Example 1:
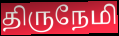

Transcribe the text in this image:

திருநேமி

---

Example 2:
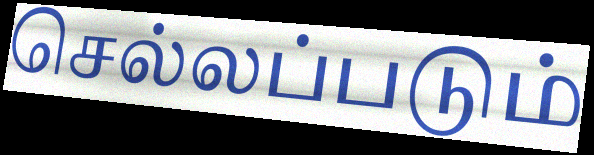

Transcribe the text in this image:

செல்லப்படும்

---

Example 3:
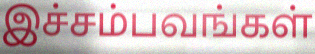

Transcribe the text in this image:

இச்சம்பவங்கள்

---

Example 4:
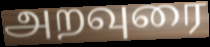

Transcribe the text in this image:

அறவுரை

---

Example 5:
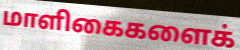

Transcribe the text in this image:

மாளிகைகளைக்